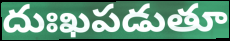
దుఃఖపడుతూ